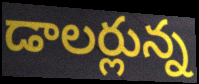
డాలర్లున్న